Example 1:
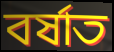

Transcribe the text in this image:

বৰ্ষাত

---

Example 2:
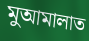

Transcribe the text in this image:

মুআমালাত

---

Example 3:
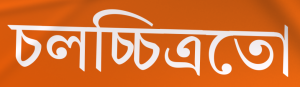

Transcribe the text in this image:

চলচ্চিত্ৰতো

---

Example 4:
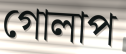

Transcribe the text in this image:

গোলাপ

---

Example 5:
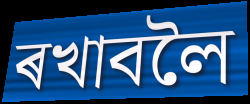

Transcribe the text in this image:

ৰখাবলৈ